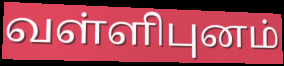
வள்ளிபுனம்